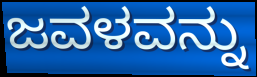
ಜವಳವನ್ನು